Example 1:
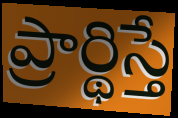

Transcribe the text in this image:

ప్రార్థిస్తే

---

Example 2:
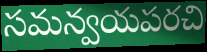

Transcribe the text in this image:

సమన్వయపరచి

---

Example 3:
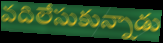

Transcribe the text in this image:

వదిలేసుకున్నాడు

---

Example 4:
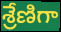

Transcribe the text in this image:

శ్రేణిగా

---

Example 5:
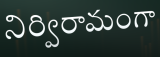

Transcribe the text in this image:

నిర్విరామంగా